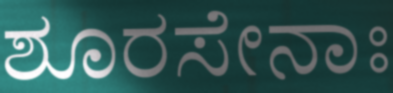
ಶೂರಸೇನಾಃ